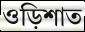
ওড়িশাত